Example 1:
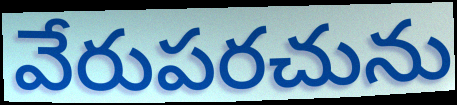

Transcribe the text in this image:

వేరుపరచును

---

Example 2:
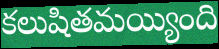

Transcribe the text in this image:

కలుషితమయ్యింది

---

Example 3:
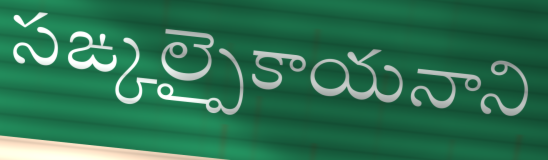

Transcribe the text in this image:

సఙ్కల్పైకాయనాని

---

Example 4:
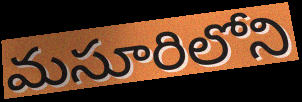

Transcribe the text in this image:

మసూరిలోని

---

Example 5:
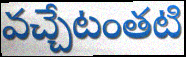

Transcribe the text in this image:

వచ్చేటంతటి